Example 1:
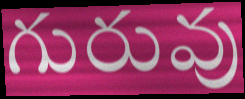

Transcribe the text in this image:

గురువు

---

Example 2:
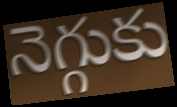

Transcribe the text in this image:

నెగ్గుకు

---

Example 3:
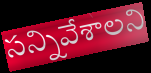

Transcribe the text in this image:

సన్నివేశాలని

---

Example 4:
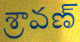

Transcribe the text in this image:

శ్రావణ్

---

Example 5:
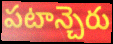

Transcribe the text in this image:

పటాన్చెరు